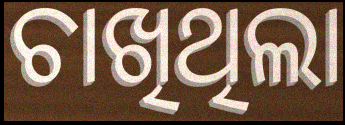
ଚାଖିଥିଲା